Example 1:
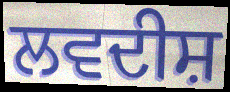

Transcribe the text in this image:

ਲਵਦੀਸ਼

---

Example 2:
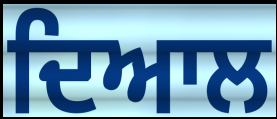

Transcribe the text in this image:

ਦਿਆਲ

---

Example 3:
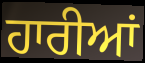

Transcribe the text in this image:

ਹਾਰੀਆਂ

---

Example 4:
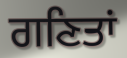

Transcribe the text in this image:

ਗਣਿਤਾਂ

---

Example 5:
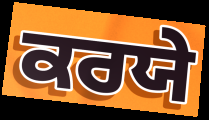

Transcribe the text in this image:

ਕਰਯੇ